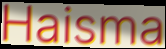
Haisma